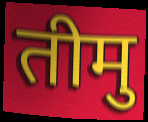
तीमु